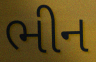
ભીન